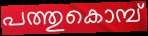
പത്തുകൊമ്പ്